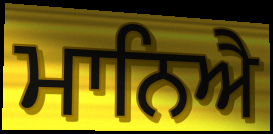
ਮਾਨਿਐ